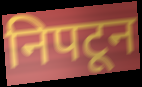
निपटून